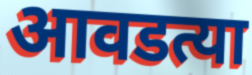
आवडत्या